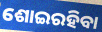
ଶୋଇରହିବା